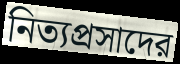
নিত্যপ্রসাদের